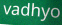
vadhyo